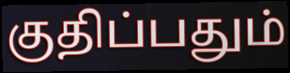
குதிப்பதும்